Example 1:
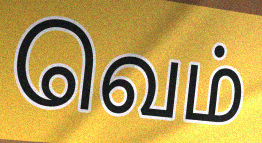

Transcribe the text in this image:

வெம்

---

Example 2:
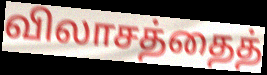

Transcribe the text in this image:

விலாசத்தைத்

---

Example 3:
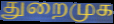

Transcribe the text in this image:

துறைமுக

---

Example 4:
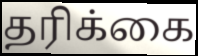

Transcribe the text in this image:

தரிக்கை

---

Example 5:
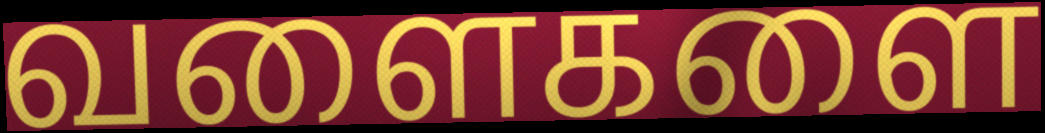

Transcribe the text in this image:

வளைகளை